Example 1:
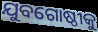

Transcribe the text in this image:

ଯୁବଗୋଷ୍ଠୀକୁ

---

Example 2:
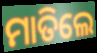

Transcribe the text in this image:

ମାତିଲେ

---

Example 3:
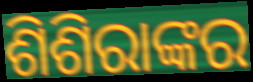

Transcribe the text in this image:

ଶିଶିରାଙ୍କର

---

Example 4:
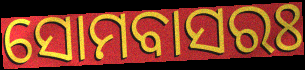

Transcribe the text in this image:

ସୋମବାସରଃ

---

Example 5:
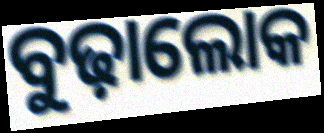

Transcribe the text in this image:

ବୁଢ଼ାଲୋକ